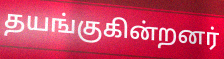
தயங்குகின்றனர்